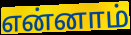
என்னாம்